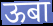
ऊबा